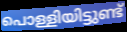
പൊള്ളിയിട്ടുണ്ട്